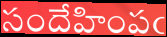
సందేహింపఁ